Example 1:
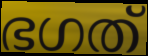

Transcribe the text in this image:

ഭഗത്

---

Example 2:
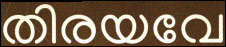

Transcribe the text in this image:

തിരയവേ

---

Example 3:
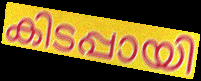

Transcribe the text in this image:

കിടപ്പായി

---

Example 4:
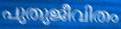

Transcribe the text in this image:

പുതുജീവിതം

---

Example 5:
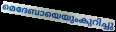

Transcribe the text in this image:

മെദേബായെയുംകുറിച്ചു